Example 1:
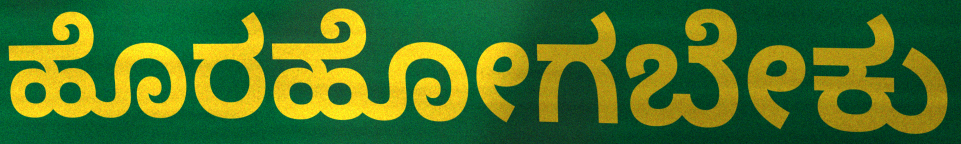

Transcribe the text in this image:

ಹೊರಹೋಗಬೇಕು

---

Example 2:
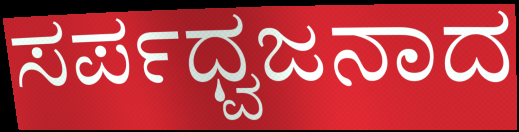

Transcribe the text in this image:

ಸರ್ಪಧ್ವಜನಾದ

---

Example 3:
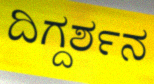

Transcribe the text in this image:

ದಿಗ್ದರ್ಶನ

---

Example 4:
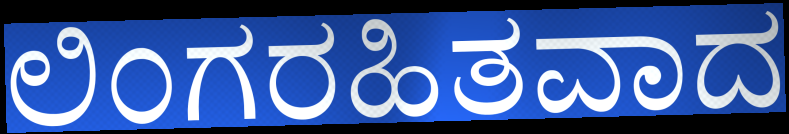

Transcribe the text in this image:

ಲಿಂಗರಹಿತವಾದ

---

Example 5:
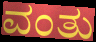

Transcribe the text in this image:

ವಂತು